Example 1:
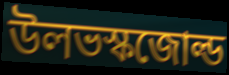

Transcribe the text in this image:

উলভস্কজোল্ড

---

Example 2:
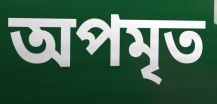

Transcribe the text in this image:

অপমৃত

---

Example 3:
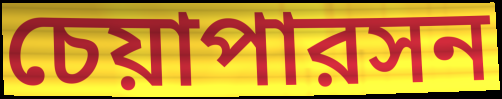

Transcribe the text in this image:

চেয়াপারসন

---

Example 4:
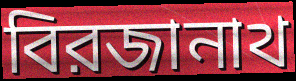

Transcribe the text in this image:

বিরজানাথ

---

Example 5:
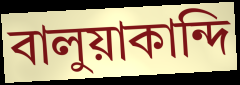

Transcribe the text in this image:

বালুয়াকান্দি